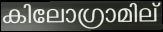
കിലോഗ്രാമില്